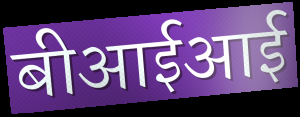
बीआईआई